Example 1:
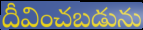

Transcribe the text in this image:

దీవించబడును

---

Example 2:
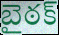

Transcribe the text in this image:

బైఠక్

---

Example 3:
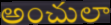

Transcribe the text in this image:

అంచులా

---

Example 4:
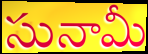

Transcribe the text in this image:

సునామీ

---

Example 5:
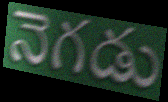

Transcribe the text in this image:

నెగడు